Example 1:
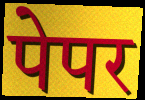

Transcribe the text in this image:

पेपर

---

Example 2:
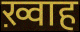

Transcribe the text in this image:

ख़्वाह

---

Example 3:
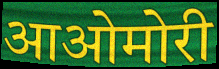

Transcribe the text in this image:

आओमोरी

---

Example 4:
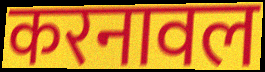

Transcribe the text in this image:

करनावल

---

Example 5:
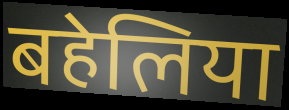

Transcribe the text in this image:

बहेलिया